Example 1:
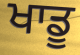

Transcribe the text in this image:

ਖਾਡੂ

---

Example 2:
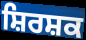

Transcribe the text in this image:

ਸ਼ਿਰਸ਼ਕ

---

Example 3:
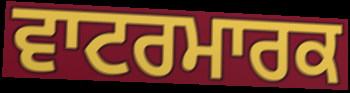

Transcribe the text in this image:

ਵਾਟਰਮਾਰਕ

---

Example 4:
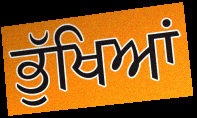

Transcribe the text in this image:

ਭੁੱਖਿਆਂ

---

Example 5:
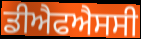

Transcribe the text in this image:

ਡੀਐਫਐਸਸੀ